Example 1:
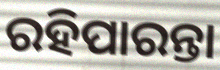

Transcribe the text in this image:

ରହିପାରନ୍ତା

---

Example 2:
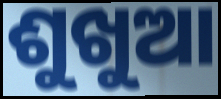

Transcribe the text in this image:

ଶୁଖୁଆ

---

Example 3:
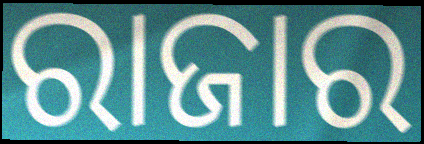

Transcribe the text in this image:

ରାଜାର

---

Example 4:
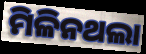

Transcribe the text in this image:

ମିଳିନଥଲା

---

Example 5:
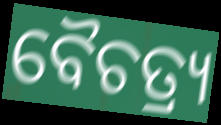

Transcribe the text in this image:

ବୈଚତ୍ର୍ୟ